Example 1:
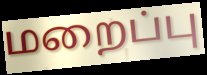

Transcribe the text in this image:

மறைப்பு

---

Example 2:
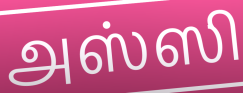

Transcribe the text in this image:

அஸ்ஸி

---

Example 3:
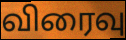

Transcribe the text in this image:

விரைவு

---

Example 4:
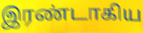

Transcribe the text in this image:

இரண்டாகிய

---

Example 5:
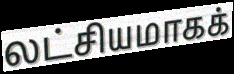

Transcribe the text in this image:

லட்சியமாகக்